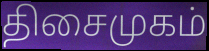
திசைமுகம்